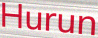
Hurun